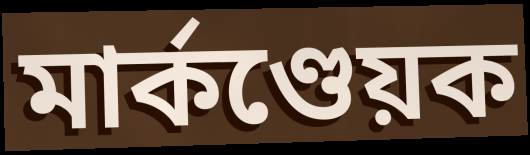
মাৰ্কণ্ডেয়ক